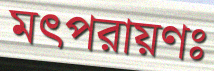
মৎপরায়ণঃ